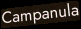
Campanula